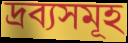
দ্ৰব্যসমূহ